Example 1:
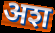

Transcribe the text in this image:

अश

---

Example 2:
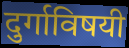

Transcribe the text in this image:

दुर्गाविषयी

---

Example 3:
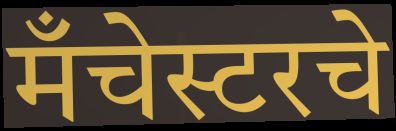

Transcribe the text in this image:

मँचेस्टरचे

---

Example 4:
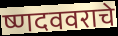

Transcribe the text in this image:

ष्णदववराचे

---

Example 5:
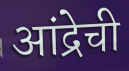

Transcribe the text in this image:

आंद्रेची